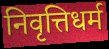
निवृत्तिधर्म